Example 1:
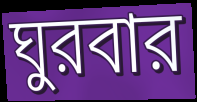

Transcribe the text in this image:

ঘুরবার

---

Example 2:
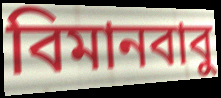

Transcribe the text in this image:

বিমানবাবু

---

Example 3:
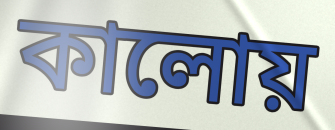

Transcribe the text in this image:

কালোয়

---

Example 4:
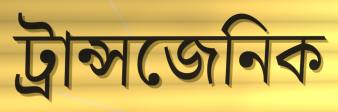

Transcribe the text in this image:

ট্রান্সজেনিক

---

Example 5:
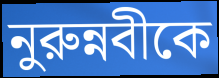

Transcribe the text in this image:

নুরুন্নবীকে